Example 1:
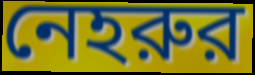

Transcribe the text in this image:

নেহরুর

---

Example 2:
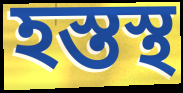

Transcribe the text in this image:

হস্তস্থ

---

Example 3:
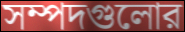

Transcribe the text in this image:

সম্পদগুলোর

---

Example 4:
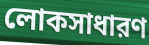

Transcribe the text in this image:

লোকসাধারণ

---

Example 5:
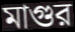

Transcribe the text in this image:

মাগুর